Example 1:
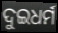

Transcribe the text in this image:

ଦୁଇଧର୍ମ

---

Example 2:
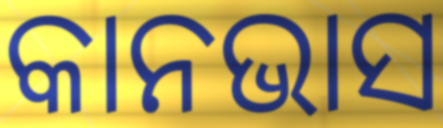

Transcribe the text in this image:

କାନଭାସ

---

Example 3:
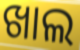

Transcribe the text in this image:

ଖାଲ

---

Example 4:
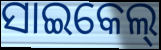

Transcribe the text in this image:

ସାଇକେଲ୍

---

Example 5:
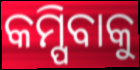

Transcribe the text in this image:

କମ୍ପିବାକୁ